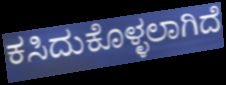
ಕಸಿದುಕೊಳ್ಳಲಾಗಿದೆ